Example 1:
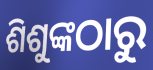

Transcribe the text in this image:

ଶିଶୁଙ୍କଠାରୁ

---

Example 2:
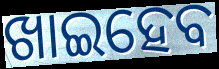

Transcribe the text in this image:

ଖାଇହେବ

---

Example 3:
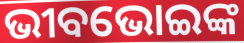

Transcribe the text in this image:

ଭୀବଭୋଇଙ୍କ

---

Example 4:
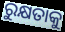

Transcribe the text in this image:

ରୁକ୍ଷତାକୁ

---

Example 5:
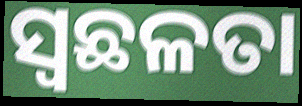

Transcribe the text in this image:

ସ୍ୱଛଳତା